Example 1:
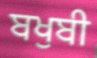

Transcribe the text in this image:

ਬਖੁਬੀ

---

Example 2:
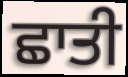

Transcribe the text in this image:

ਛਾਤੀ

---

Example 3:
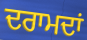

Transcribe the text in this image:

ਦਰਾਮਦਾਂ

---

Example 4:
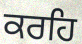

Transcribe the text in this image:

ਕਰਹਿ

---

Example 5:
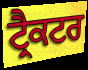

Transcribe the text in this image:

ਟ੍ਰੈਕਟਰ